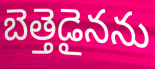
బెత్తెడైనను